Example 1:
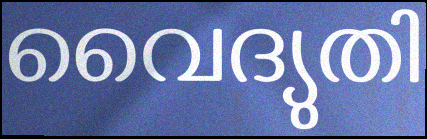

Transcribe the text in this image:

വൈദ്യുതി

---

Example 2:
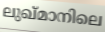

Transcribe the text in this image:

ലുഖ്മാനിലെ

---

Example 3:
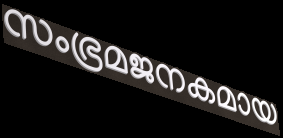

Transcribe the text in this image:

സംഭ്രമജനകമായ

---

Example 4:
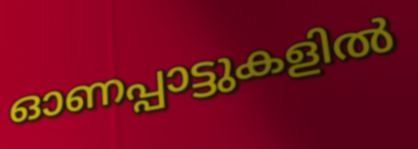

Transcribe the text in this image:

ഓണപ്പാട്ടുകളിൽ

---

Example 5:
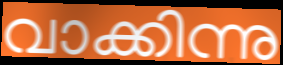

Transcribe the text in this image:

വാക്കിന്നു